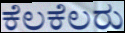
ಕೆಲಕೆಲರು